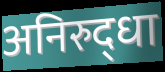
अनिरुद्धा